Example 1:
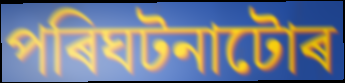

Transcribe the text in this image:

পৰিঘটনাটোৰ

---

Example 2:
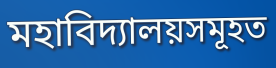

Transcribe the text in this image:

মহাবিদ্যালয়সমূহত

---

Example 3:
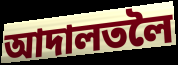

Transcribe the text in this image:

আদালতলৈ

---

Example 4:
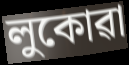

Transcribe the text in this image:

লুকোৱা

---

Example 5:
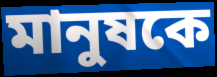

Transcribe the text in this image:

মানুষকে